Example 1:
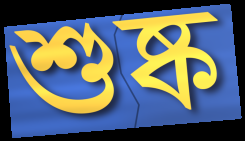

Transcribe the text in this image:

শুষ্ক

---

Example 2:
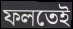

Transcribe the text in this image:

ফলতেই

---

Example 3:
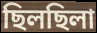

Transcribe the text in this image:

ছিলছিলা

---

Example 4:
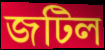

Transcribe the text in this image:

জটিল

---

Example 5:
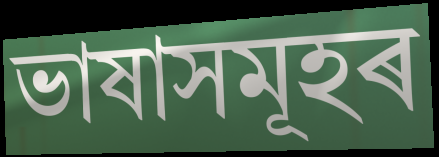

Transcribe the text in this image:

ভাষাসমূহৰ